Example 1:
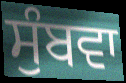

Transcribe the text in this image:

ਸੁੰਬਵਾ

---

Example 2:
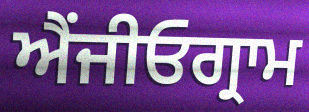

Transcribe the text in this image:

ਐਂਜੀਓਗ੍ਰਾਮ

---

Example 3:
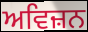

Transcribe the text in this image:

ਅਵਿਜ਼ਨ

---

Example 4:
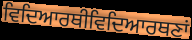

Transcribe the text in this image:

ਵਿਦਿਆਰਥੀਵਿਦਿਆਰਥਣਾਂ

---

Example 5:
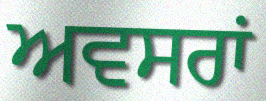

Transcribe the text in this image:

ਅਵਸਰਾਂ